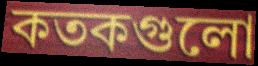
কতকগুলো